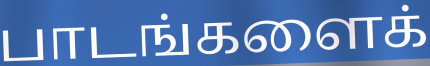
பாடங்களைக்